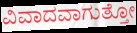
ವಿವಾದವಾಗುತ್ತೋ